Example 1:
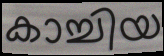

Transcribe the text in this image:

കാച്ചിയ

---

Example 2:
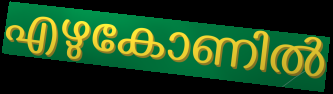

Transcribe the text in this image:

എഴുകോണിൽ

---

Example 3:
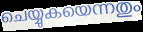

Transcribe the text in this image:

ചെയ്യുകയെന്നതും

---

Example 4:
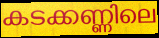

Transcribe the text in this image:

കടക്കണ്ണിലെ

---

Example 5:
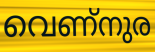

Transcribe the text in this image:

വെണ്നുര